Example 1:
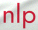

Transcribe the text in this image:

nlp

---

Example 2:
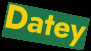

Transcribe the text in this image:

Datey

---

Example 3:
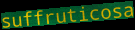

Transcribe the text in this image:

suffruticosa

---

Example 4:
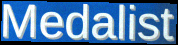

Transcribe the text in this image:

Medalist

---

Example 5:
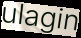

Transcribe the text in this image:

ulagin